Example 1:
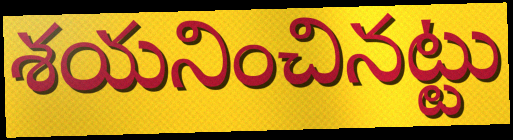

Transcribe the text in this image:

శయనించినట్టు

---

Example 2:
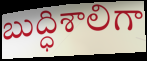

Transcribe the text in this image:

బుద్ధిశాలిగా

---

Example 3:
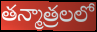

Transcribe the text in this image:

తన్మాత్రలలో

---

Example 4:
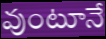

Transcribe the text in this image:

వుంటూనే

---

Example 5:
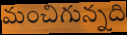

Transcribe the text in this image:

మంచిగున్నది